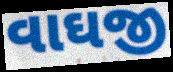
વાઘજી